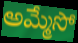
అమ్మేసో